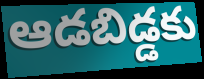
ఆడబిడ్డకు